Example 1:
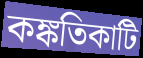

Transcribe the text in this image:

কঙ্কতিকাটি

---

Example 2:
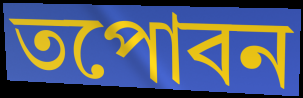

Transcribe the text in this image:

তপোবন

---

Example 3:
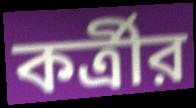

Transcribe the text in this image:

কর্ত্রীর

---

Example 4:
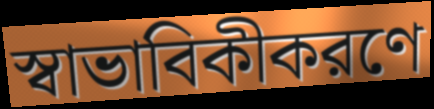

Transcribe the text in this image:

স্বাভাবিকীকরণে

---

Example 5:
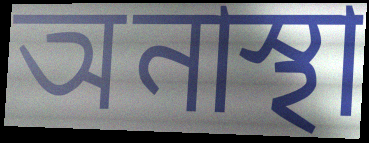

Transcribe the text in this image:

অনাস্থা